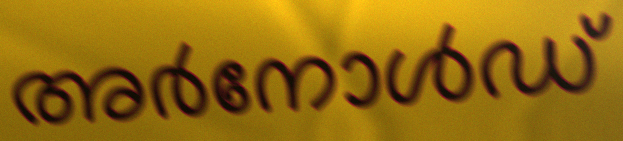
അർനോൾഡ്